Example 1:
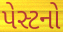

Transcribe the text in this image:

પેસ્ટનો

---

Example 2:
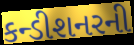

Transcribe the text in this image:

કન્ડીશનરની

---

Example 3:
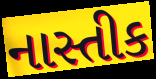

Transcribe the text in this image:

નાસ્તીક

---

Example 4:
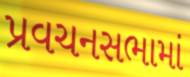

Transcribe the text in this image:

પ્રવચનસભામાં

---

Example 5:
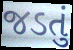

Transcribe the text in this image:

જડતું